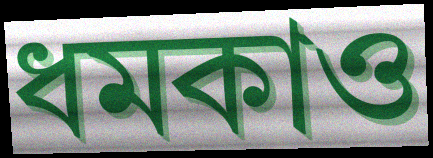
ধমকাও